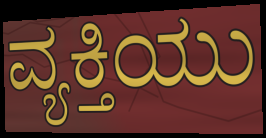
ವ್ಯಕ್ತಿಯು